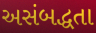
અસંબદ્ધતા